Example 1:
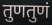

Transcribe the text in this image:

तुणतुणं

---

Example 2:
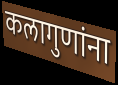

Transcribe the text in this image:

कलागुणांना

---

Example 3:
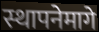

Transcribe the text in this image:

स्थापनेमागे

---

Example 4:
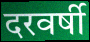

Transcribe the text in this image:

दरवर्षी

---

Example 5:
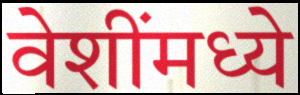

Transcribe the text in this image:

वेशींमध्ये